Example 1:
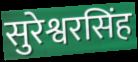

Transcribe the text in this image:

सुरेश्वरसिंह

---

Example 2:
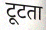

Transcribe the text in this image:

टूटता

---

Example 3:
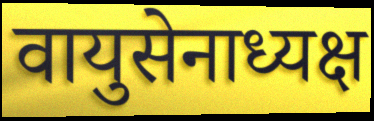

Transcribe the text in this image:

वायुसेनाध्यक्ष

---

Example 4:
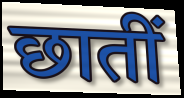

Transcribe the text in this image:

छातीं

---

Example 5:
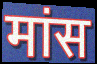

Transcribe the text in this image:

मांस